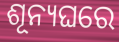
ଶୂନ୍ୟଘରେ